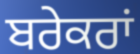
ਬਰੇਕਰਾਂ